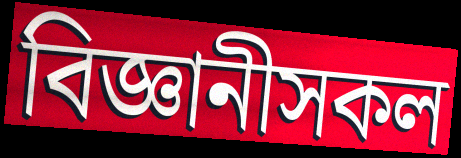
বিজ্ঞানীসকল